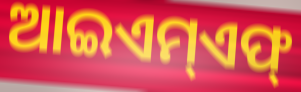
ଆଇଏମ୍ଏଫ୍